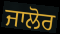
ਜਾਲੋਰ